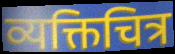
व्यक्तिचित्र